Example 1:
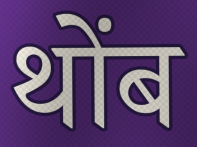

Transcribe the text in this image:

थोंब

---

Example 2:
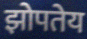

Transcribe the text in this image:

झोपतेय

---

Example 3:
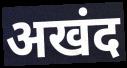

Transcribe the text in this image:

अखंद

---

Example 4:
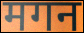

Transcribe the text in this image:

मगन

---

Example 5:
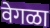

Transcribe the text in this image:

वेगळा